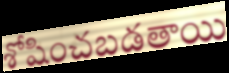
శోషించబడతాయి